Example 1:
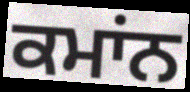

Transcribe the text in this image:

ਕਮਾਂਨ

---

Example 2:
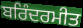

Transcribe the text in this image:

ਬਰਿੰਦਰਮੀਤ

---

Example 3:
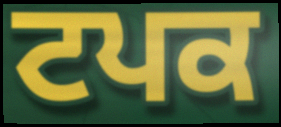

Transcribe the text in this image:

ਟਪਕ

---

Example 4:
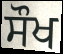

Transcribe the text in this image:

ਸੌਖ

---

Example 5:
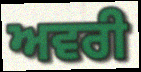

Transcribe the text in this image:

ਅਵਰੀ